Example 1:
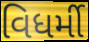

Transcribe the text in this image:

વિધર્મી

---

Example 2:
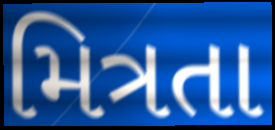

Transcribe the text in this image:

મિત્રતા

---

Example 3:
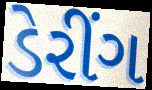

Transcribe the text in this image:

ડેરીંગ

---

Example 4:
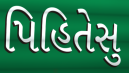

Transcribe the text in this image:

પિહિતેસુ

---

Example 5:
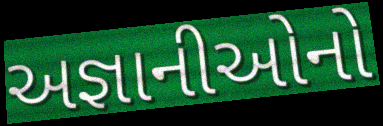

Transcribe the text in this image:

અજ્ઞાનીઓનો